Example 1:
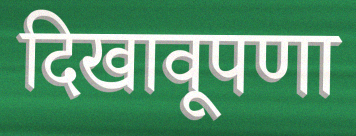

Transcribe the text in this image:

दिखावूपणा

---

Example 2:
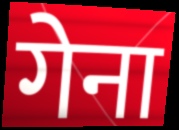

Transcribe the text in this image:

गेना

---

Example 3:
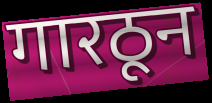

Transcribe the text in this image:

गारठून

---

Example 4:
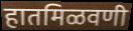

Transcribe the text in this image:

हातमिळवणी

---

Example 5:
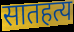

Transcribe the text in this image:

सातहत्य